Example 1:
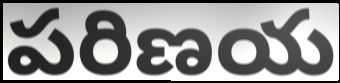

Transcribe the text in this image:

పరిణయ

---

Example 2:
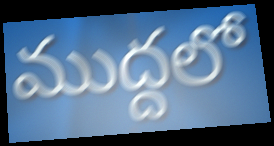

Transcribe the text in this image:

ముద్దలో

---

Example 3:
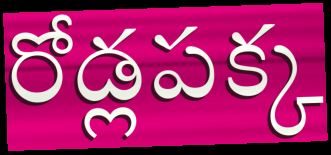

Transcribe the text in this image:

రోడ్లపక్క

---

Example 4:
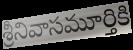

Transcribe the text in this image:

శ్రీనివాసమూర్తికి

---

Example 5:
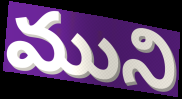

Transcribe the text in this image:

ముని